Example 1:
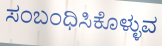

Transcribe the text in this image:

ಸಂಬಂಧಿಸಿಕೊಳ್ಳುವ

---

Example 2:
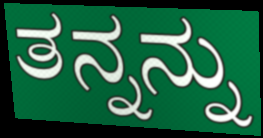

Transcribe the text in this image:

ತನ್ನನ್ನು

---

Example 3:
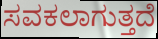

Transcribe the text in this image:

ಸವಕಲಾಗುತ್ತದೆ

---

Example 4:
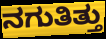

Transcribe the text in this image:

ನಗುತಿತ್ತು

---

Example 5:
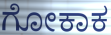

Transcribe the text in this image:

ಗೋಕಾಕ